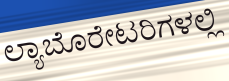
ಲ್ಯಾಬೊರೇಟರಿಗಳಲ್ಲಿ